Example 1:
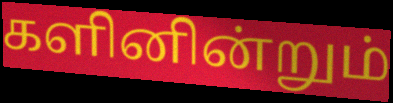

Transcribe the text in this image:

களினின்றும்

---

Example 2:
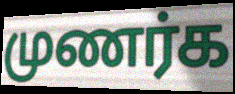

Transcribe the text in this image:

முணர்க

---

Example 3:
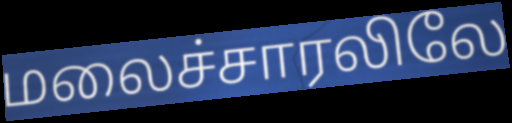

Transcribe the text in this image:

மலைச்சாரலிலே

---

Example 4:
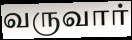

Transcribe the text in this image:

வருவார்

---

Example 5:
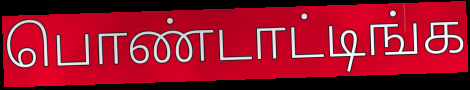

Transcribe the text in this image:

பொண்டாட்டிங்க